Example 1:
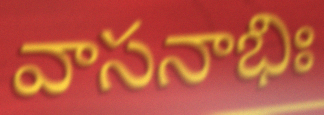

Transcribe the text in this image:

వాసనాభిః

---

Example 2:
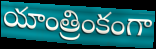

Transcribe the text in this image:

యాంత్రింకంగా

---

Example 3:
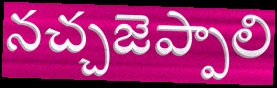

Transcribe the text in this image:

నచ్చజెప్పాలి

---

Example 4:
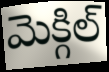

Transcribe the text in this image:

మెక్గిల్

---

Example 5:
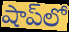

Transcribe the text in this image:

షాప్‌లో